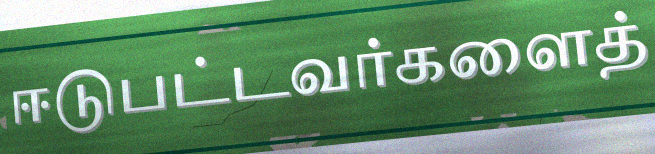
ஈடுபட்டவர்களைத்